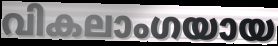
വികലാംഗയായ